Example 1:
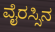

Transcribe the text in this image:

ವೈರಸ್ಸಿನ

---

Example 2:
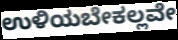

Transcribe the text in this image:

ಉಳಿಯಬೇಕಲ್ಲವೇ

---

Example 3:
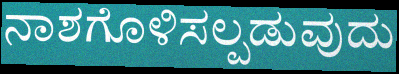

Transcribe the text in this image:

ನಾಶಗೊಳಿಸಲ್ಪಡುವುದು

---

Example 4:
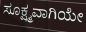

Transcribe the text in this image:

ಸೂಕ್ಷ್ಮವಾಗಿಯೇ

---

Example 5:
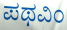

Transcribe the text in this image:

ಪಥವಿಂ